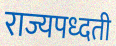
राज्यपध्दती